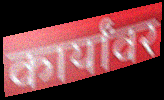
कार्यांवर